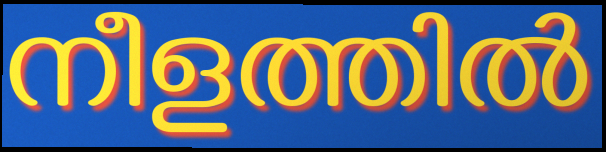
നീളത്തിൽ